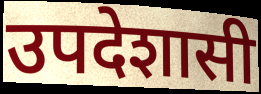
उपदेशासी